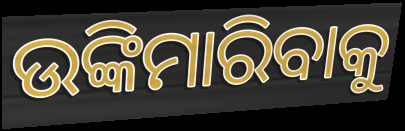
ଉଙ୍କିମାରିବାକୁ